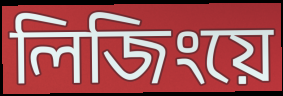
লিজিংয়ে